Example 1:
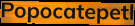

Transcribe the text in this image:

Popocatepetl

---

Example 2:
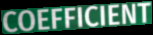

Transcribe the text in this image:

COEFFICIENT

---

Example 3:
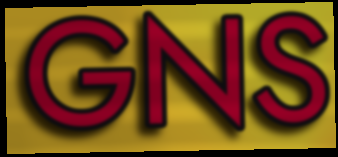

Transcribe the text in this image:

GNS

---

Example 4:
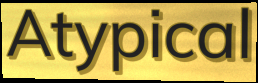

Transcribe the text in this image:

Atypical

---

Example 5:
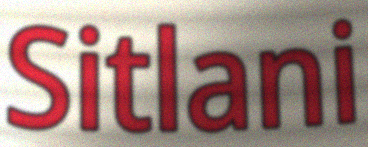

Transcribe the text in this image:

Sitlani